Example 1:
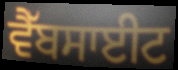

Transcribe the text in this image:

ਵੈੱਬਸਾਈਟ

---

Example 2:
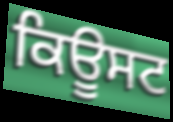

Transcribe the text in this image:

ਕਿਊਸਟ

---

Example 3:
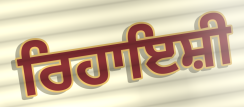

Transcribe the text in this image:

ਰਿਹਾਇਸ਼ੀ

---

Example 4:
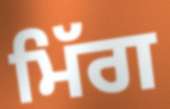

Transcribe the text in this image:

ਮਿੱਗ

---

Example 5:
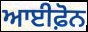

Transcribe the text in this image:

ਆਈਫ਼ੋਨ